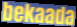
bekaada